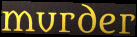
murder